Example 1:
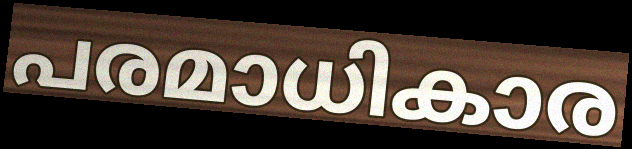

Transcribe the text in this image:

പരമാധികാര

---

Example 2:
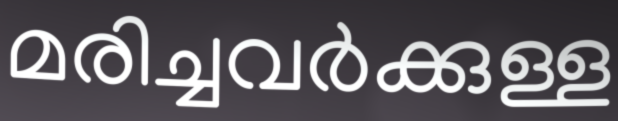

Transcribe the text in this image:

മരിച്ചവർക്കുള്ള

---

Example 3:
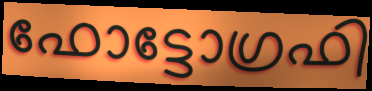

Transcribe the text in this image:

ഫോട്ടോഗ്രഫി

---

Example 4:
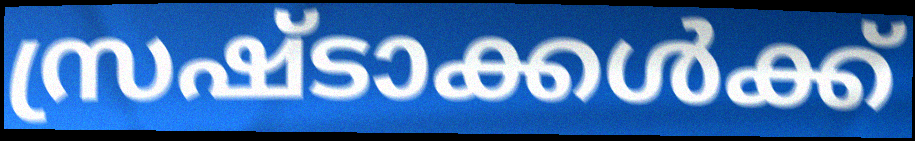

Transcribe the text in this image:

സ്രഷ്ടാക്കൾക്ക്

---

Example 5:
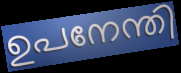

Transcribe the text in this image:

ഉപനേന്തി